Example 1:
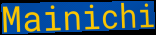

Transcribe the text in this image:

Mainichi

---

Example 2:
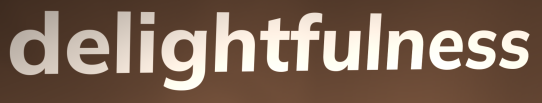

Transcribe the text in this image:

delightfulness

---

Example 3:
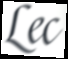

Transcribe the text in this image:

Lec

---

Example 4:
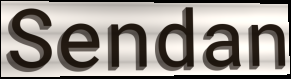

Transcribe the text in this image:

Sendan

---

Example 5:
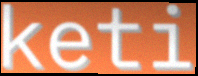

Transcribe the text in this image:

keti